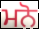
ਮਨੋ